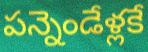
పన్నెండేళ్లకే